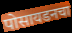
पोसायडनचा